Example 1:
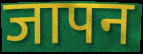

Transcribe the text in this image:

जापन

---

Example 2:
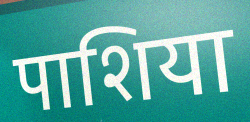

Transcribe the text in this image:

पाशिया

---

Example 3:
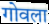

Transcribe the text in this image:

गोवला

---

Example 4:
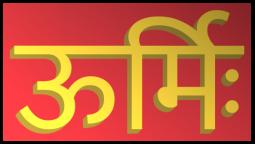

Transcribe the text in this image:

ऊर्मिः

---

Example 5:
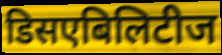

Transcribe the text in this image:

डिसएबिलिटीज